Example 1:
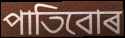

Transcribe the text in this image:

পাতিবোৰ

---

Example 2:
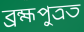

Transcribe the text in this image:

ব্ৰহ্মপুত্ৰত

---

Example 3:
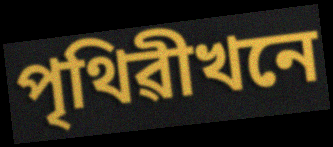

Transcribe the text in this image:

পৃথিৱীখনে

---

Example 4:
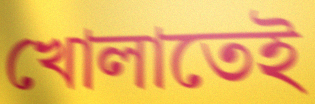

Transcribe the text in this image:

খোলাতেই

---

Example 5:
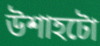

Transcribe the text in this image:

উশাহটো